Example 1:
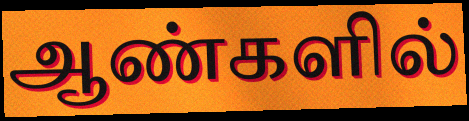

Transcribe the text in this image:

ஆண்களில்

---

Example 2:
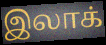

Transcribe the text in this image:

இலாக்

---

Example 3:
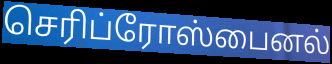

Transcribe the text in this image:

செரிப்ரோஸ்பைனல்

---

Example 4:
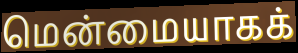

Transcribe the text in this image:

மென்மையாகக்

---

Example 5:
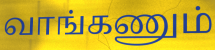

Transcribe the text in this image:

வாங்கணும்